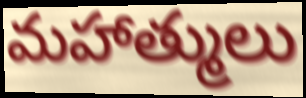
మహాత్ములు